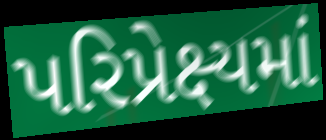
પરિપ્રેક્ષ્યમાં